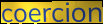
coercion